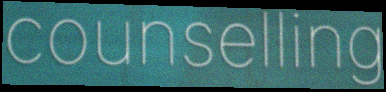
counselling